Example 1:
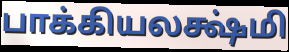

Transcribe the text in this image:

பாக்கியலக்ஷ்மி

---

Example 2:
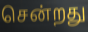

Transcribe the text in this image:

சென்றது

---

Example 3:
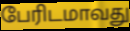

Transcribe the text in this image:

பேரிடமாவது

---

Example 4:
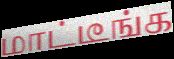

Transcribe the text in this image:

மாட்டீங்க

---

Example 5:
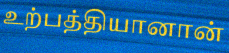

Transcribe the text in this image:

உற்பத்தியானான்